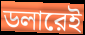
ডলারেই